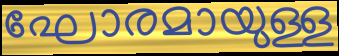
ഘോരമായുള്ള